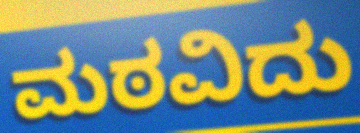
ಮಠವಿದು